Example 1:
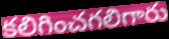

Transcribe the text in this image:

కలిగించగలిగారు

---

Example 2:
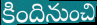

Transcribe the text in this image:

కిందినుంచి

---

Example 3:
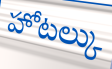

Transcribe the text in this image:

హోటల్కు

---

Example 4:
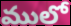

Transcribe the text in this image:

ములో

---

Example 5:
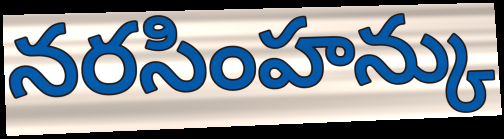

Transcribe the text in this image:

నరసింహన్కు